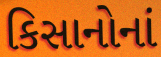
કિસાનોનાં